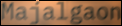
Majalgaon